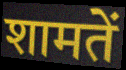
शामतें